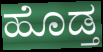
ಹೊಡ್ತ